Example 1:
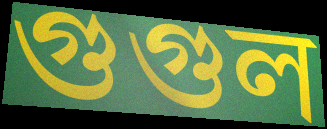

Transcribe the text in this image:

গুগুল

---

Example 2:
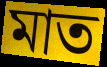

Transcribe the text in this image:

মাত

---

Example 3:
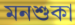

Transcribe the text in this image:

মনশুকা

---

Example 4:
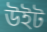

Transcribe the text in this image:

উইট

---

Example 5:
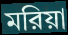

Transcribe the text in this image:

মরিয়া